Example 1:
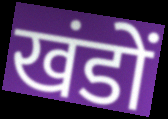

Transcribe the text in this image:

खंडों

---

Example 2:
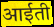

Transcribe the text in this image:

आईती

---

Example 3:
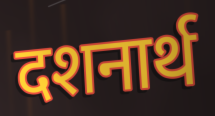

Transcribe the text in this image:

दशनार्थ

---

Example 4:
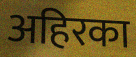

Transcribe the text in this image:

अहिरका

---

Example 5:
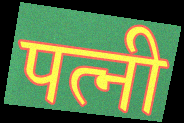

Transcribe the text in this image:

पत्नी